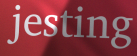
jesting